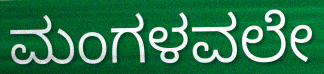
ಮಂಗಳವಲೇ